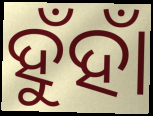
ହୁଁହାଁ